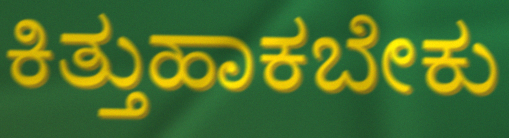
ಕಿತ್ತುಹಾಕಬೇಕು